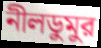
নীলডুমুর